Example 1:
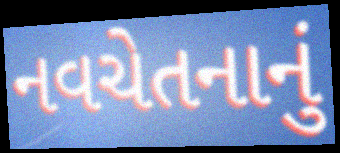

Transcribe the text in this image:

નવચેતનાનું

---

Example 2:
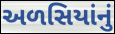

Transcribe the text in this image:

અળસિયાંનું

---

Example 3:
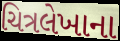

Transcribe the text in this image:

ચિત્રલેખાના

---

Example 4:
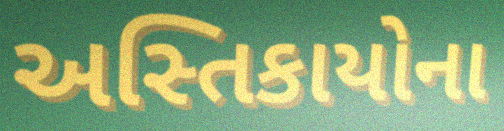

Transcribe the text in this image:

અસ્તિકાયોના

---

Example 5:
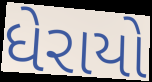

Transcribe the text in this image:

ધેરાયો